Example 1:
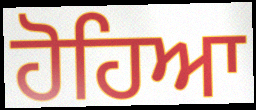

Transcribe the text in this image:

ਹੋਹਿਆ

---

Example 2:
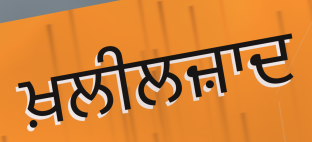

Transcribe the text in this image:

ਖ਼ਲੀਲਜ਼ਾਦ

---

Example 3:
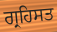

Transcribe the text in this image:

ਗ੍ਰਹਿਸਤ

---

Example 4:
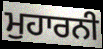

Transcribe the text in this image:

ਮੁਹਾਰਨੀ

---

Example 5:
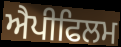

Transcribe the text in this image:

ਐਪੀਫਿਲਮ